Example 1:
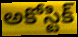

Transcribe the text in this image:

అకోస్టిక్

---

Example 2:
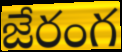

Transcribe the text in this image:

జేరంగ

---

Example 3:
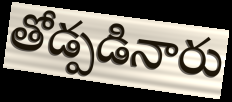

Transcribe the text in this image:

తోడ్పడినారు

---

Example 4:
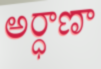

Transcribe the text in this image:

అర్ధాణా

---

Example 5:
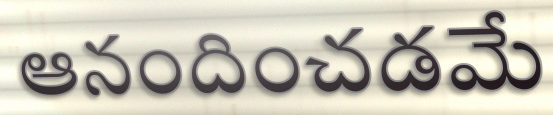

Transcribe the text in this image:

ఆనందించడమే